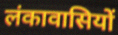
लंकावासियों